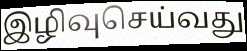
இழிவுசெய்வது